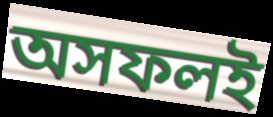
অসফলই